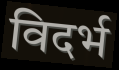
विदर्भ